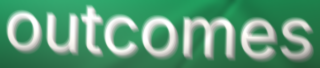
outcomes